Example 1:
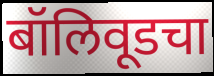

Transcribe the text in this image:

बॉलिवूडचा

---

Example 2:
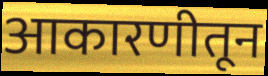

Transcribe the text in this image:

आकारणीतून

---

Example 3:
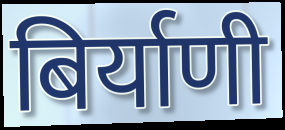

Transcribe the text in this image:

बिर्याणी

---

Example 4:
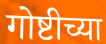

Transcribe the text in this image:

गोष्टीच्या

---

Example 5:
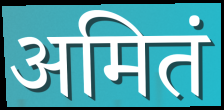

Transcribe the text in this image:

अमितं